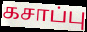
கசாப்பு